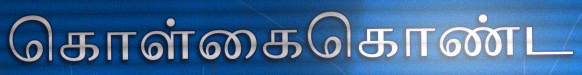
கொள்கைகொண்ட